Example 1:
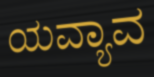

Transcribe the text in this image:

ಯವ್ಯಾವ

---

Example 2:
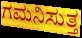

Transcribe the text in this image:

ಗಮನಿಸುತ್ತ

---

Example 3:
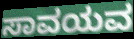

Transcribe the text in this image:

ಸಾವಯವ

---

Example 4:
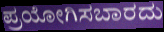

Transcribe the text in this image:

ಪ್ರಯೋಗಿಸಬಾರದು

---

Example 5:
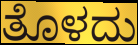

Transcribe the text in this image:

ತೊಳದು